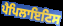
ਪੈਪਿਲਾਇਟਿਸ